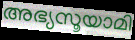
അഭ്യസൂയാമി